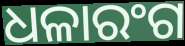
ଧଳାରଂଗ